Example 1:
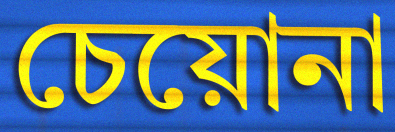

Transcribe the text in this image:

চেয়োনা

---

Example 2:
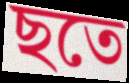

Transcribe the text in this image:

ছতে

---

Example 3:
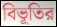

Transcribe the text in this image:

বিভূতির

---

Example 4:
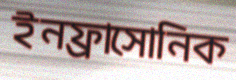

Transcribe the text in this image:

ইনফ্রাসোনিক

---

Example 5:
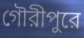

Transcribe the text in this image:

গৌরীপুরে